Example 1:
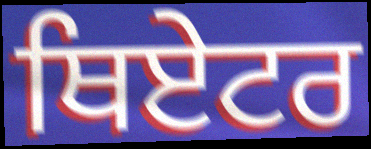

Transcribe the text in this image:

ਥਿਏਟਰ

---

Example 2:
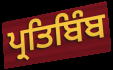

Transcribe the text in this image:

ਪ੍ਰਤਿਬਿੰਬ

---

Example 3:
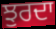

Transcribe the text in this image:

ਝੁਰਦਾ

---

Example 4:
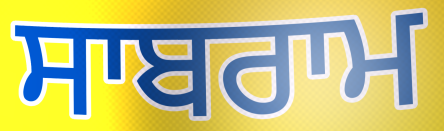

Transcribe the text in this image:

ਸਾਬਰਾਮ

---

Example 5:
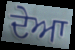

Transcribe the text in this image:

ਦੇਆ